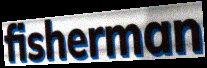
fisherman